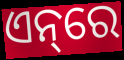
ଏନ୍‌ରେ